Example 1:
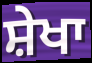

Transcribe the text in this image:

ਸ਼ੇਖਾ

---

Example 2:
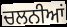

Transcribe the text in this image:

ਚਲਨੀਆਂ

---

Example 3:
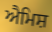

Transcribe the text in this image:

ਐਮਿਸ਼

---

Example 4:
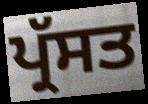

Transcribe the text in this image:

ਪ੍ਰੱਸਤ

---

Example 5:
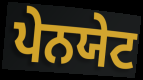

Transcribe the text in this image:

ਪੇਨਯੇਟ